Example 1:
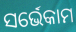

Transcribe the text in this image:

ସର୍ଭେକାମ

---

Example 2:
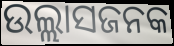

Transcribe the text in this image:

ଉଲ୍ଲାସଜନକ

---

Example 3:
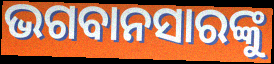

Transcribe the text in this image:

ଭଗବାନସାରଙ୍କୁ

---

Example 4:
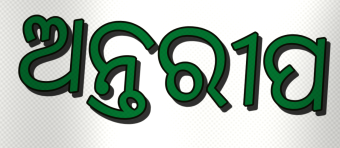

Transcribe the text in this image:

ଅନ୍ତରୀପ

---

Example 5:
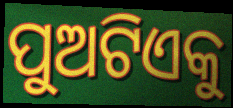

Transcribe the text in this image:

ପୁଅଟିଏକୁ